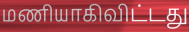
மணியாகிவிட்டது